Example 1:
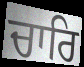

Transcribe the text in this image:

ਚਾਰਿ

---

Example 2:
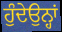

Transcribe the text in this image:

ਹੁੰਦੇਉਨ੍ਹਾਂ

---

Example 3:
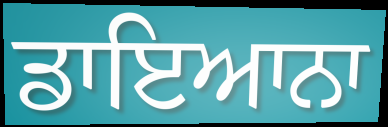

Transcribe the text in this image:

ਡਾਇਆਨਾ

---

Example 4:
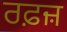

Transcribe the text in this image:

ਰਫ਼ਜ਼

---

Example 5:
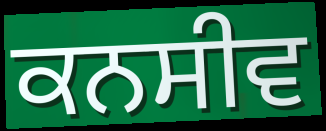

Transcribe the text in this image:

ਕਨਸੀਵ